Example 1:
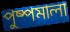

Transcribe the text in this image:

পুষ্পমালা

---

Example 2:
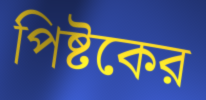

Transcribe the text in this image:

পিষ্টকের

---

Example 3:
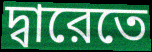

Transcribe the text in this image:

দ্বারেতে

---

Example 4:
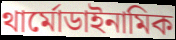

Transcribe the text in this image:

থার্মোডাইনামিক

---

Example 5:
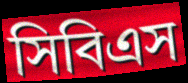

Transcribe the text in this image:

সিবিএস